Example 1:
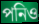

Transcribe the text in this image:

পনিও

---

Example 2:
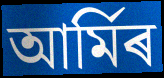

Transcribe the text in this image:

আৰ্মিৰ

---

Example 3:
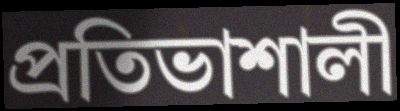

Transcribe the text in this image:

প্ৰতিভাশালী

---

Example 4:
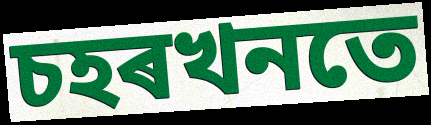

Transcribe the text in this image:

চহৰখনতে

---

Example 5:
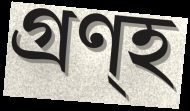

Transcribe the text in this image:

গ্ৰণ্হ